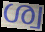
ശ്വ